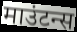
माउंटन्स